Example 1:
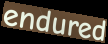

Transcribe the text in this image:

endured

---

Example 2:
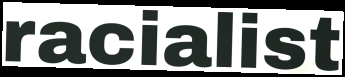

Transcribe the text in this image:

racialist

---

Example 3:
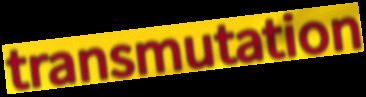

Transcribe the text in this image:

transmutation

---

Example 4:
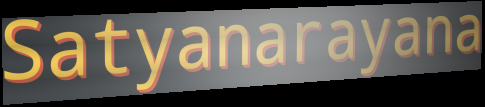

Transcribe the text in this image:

Satyanarayana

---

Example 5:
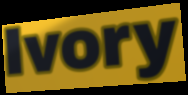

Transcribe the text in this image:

Ivory